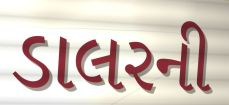
ડાલરની